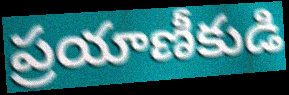
ప్రయాణీకుడి